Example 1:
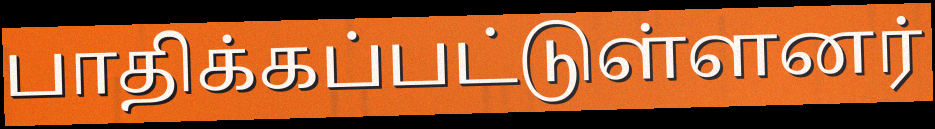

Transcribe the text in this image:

பாதிக்கப்பட்டுள்ளனர்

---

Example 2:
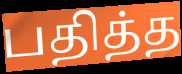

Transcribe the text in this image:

பதித்த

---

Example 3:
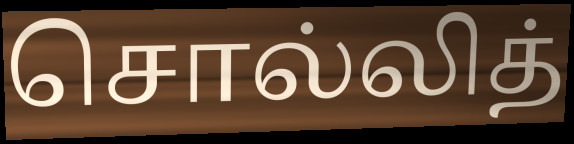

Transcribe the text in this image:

சொல்லித்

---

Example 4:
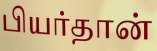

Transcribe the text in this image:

பியர்தான்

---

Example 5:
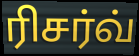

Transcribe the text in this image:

ரிசர்வ்